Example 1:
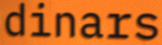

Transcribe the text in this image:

dinars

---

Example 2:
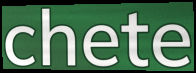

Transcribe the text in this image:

chete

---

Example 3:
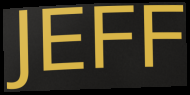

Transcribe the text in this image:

JEFF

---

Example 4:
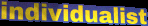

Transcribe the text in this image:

individualist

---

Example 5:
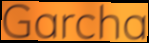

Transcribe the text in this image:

Garcha